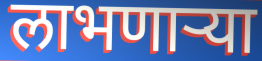
लाभणाऱ्या